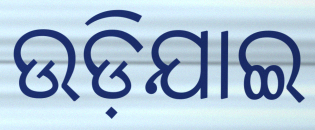
ଉଡ଼ିଯାଇ